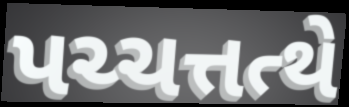
પચ્ચત્તત્થે